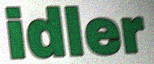
idler